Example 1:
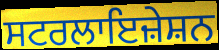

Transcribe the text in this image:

ਸਟਰਲਾਇਜ਼ੇਸ਼ਨ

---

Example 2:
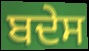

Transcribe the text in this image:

ਬਦੇਸ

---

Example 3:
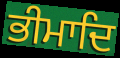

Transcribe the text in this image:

ਭੀਮਾਦਿ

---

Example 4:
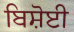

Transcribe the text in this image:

ਬਿਸ਼ੋਈ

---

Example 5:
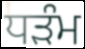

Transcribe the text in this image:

ਧੜੰਮ